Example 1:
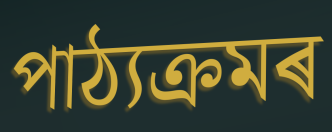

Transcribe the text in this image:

পাঠ্যক্ৰমৰ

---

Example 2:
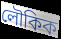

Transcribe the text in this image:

লৌকিক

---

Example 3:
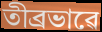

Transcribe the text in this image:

তীব্ৰভাৱে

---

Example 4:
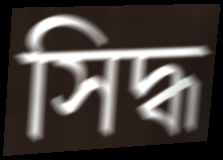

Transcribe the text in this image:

সিদ্ধ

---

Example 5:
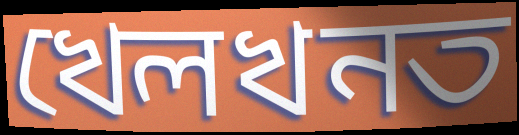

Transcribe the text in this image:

খেলখনত